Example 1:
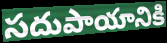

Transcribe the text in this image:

సదుపాయానికి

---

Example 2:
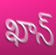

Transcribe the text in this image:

ఖాన్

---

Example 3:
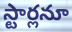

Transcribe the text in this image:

స్టార్లనూ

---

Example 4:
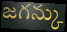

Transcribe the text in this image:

జగన్కు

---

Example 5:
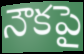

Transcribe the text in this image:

నౌకపై